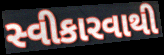
સ્વીકારવાથી